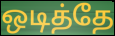
ஒடித்தே